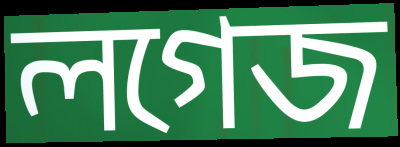
লগেজ